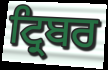
ਟ੍ਰਿਬਰ